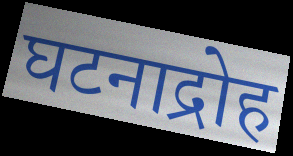
घटनाद्रोह